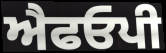
ਐਫਓਪੀ